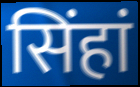
सिंहां